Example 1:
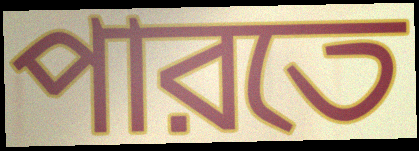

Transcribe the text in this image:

পারতে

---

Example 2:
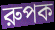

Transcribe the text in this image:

রুপক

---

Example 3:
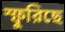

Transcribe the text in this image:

স্ফুরিছে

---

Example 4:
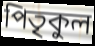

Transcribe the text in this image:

পিতৃকুল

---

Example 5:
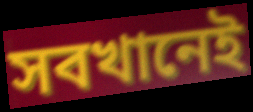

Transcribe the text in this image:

সবখানেই